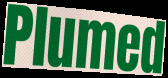
Plumed